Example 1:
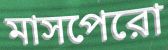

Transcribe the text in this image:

মাসপেরো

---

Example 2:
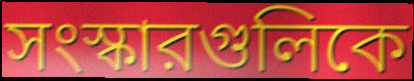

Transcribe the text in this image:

সংস্কারগুলিকে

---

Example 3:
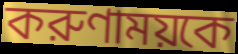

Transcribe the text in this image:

করুণাময়কে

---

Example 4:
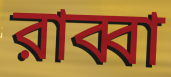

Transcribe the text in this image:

রাব্বা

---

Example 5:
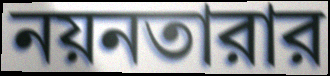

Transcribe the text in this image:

নয়নতারার